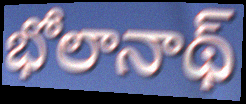
భోలానాథ్